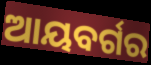
ଆୟବର୍ଗର